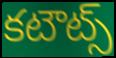
కటౌట్స్